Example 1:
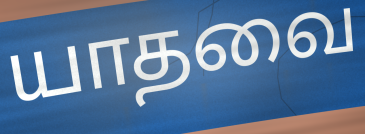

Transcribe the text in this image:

யாதவை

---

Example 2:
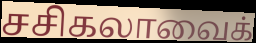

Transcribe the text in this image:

சசிகலாவைக்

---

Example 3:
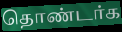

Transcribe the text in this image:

தொண்டர்க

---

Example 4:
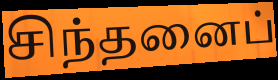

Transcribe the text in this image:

சிந்தனைப்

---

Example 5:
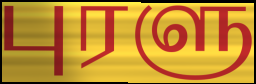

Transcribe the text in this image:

புரளு